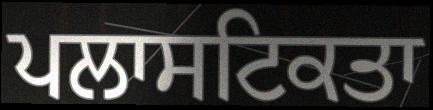
ਪਲਾਸਟਿਕਤਾ